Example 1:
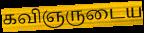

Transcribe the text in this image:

கவிஞருடைய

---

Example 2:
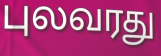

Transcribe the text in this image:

புலவரது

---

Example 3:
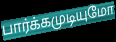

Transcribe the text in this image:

பார்க்கமுடியுமோ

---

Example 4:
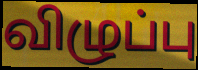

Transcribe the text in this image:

விழுப்பு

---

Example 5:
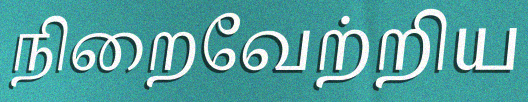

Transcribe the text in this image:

நிறைவேற்றிய